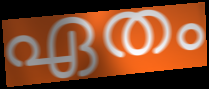
ഏതം